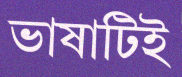
ভাষাটিই